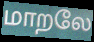
மாறலே